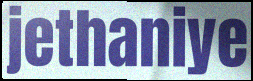
jethaniye